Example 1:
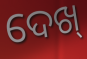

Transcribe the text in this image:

ଦେଖ୍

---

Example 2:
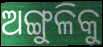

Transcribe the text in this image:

ଅଙ୍ଗୁଳିକୁ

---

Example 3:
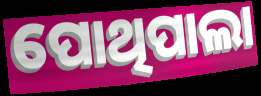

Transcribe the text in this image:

ପୋଥିପାଲା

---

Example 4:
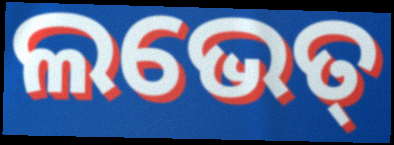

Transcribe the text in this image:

ଲଭେତ୍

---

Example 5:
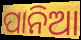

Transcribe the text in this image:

ପାନିଆ